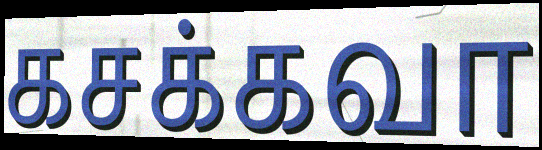
கசக்கவா